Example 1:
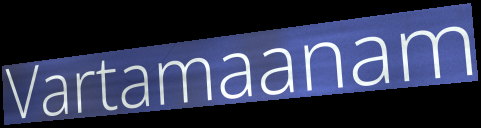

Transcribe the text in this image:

Vartamaanam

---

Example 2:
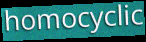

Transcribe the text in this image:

homocyclic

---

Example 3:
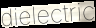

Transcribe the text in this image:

dielectric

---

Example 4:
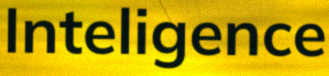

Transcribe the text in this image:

Inteligence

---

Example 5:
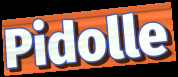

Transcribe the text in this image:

Pidolle